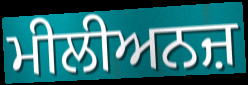
ਮੀਲੀਅਨਜ਼